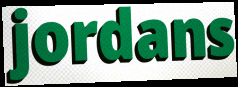
jordans